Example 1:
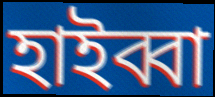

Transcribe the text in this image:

হাইব্বা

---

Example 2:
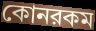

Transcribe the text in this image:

কোনরকম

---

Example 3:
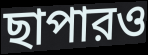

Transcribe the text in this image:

ছাপারও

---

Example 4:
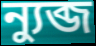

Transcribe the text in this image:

ন্যুব্জ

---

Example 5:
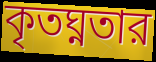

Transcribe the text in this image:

কৃতঘ্নতার